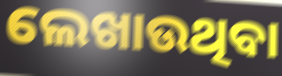
ଲେଖାଉଥିବା